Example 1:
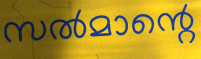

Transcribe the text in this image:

സൽമാന്റെ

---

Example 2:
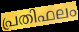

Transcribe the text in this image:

പ്രതിഫലം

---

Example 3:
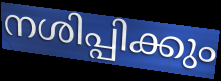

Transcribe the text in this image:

നശിപ്പിക്കും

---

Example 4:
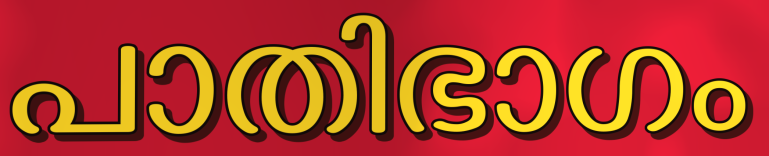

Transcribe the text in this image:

പാതിഭാഗം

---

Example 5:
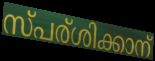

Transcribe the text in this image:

സ്പര്ശിക്കാന്